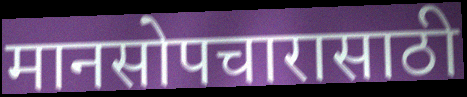
मानसोपचारासाठी